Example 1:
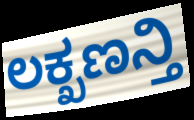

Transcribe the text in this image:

ಲಕ್ಖಣನ್ತಿ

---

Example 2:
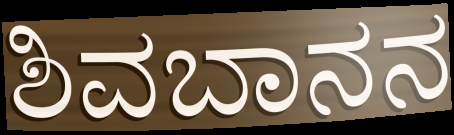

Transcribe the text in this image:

ಶಿವಬಾನನ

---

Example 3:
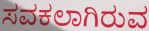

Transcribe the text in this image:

ಸವಕಲಾಗಿರುವ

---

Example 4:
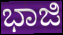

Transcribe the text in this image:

ಭಾಜಿ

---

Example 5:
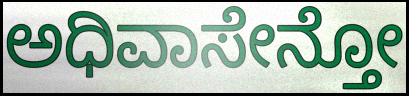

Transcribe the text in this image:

ಅಧಿವಾಸೇನ್ತೋ